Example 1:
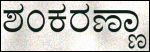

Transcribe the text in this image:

ಶಂಕರಣ್ಣಾ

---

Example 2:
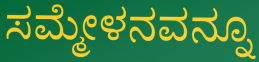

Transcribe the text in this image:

ಸಮ್ಮೇಳನವನ್ನೂ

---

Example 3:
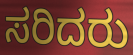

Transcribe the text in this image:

ಸರಿದರು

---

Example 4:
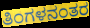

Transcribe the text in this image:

ತಿಂಗಳನಂತರ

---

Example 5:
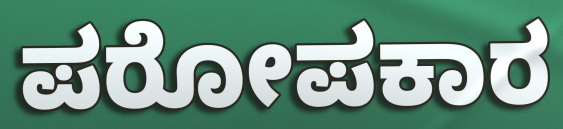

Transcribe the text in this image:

ಪರೋಪಕಾರ